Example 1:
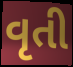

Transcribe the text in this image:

વૃતી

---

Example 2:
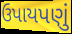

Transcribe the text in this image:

ઉપાયપણું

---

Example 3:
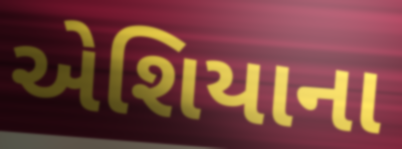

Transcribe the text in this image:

એશિયાના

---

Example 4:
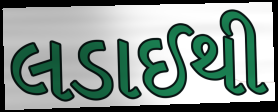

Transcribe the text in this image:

લડાઈથી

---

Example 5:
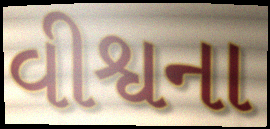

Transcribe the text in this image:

વીશ્વના